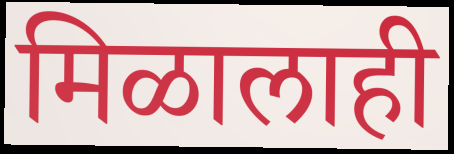
मिळालाही